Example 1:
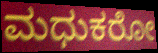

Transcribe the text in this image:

ಮಧುಕರೋ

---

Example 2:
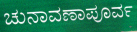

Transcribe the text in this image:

ಚುನಾವಣಾಪೂರ್ವ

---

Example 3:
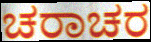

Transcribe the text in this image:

ಚರಾಚರ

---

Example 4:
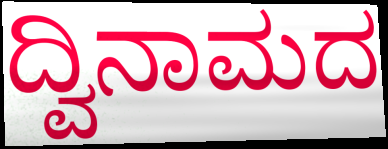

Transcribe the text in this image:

ದ್ವಿನಾಮದ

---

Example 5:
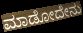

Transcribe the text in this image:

ಮಾಡೋದೇನು